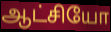
ஆட்சியோ